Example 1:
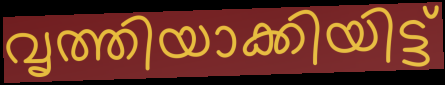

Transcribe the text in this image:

വൃത്തിയാക്കിയിട്ട്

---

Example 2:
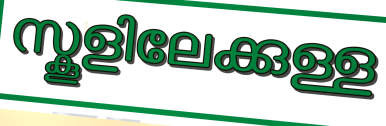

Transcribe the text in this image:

സ്കൂളിലേക്കുള്ള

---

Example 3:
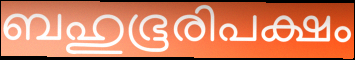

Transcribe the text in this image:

ബഹുഭൂരിപക്ഷം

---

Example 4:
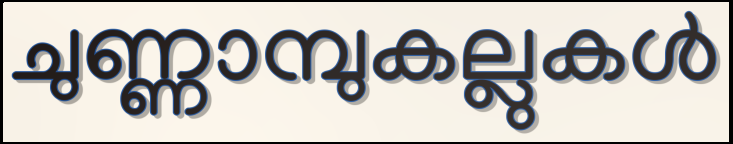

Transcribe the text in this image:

ചുണ്ണാമ്പുകല്ലുകൾ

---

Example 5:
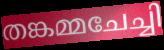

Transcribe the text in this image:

തങ്കമ്മചേച്ചി